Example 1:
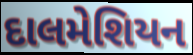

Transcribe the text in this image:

દાલમેશિયન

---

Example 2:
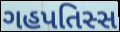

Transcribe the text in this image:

ગહપતિસ્સ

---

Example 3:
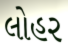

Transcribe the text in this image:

લોહર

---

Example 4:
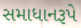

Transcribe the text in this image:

સમાધાનરૂપે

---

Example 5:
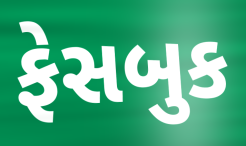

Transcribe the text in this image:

ફેસબુક